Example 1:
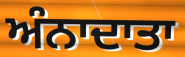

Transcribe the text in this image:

ਅੰਨਾਦਾਤਾ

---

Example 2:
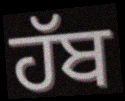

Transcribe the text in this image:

ਹੱਬ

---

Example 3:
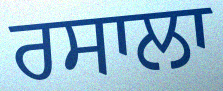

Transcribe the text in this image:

ਰਸਾਲਾ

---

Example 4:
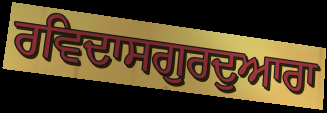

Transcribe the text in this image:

ਰਵਿਦਾਸਗੁਰਦੁਆਰਾ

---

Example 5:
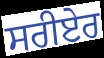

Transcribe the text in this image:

ਸਰੀਏਰ